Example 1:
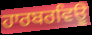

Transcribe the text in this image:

ਹਾਰਬਰਵਿਊ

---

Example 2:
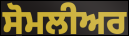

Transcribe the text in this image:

ਸੋਮਲੀਅਰ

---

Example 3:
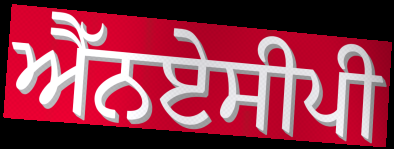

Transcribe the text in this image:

ਐੱਨਏਸੀਪੀ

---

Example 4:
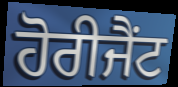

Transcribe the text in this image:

ਹੋਰੀਜੈਂਟ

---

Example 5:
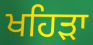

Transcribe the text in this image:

ਖਹਿਡ਼ਾ